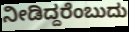
ನೀಡಿದ್ದರೆಂಬುದು